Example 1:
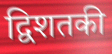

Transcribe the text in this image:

द्विशतकी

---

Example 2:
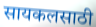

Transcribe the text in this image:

सायकलसाठी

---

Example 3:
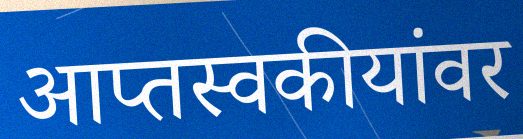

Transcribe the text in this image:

आप्तस्वकीयांवर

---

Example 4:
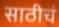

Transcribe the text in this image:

साठीचं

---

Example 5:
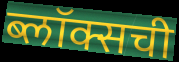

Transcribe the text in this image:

ब्लॉक्सची